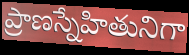
ప్రాణస్నేహితునిగా